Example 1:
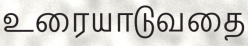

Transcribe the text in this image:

உரையாடுவதை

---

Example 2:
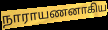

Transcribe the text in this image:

நாராயணனாகிய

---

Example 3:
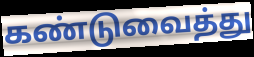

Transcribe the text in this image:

கண்டுவைத்து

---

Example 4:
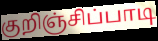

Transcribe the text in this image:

குறிஞ்சிப்பாடி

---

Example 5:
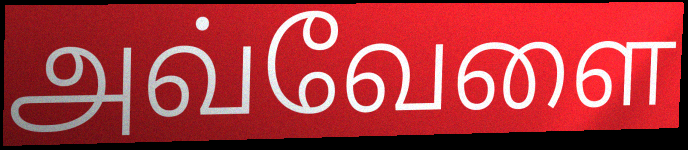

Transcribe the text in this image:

அவ்வேளை